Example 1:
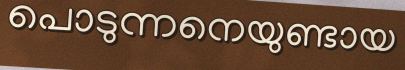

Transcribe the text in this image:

പൊടുന്നനെയുണ്ടായ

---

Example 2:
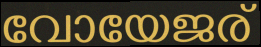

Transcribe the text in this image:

വോയേജര്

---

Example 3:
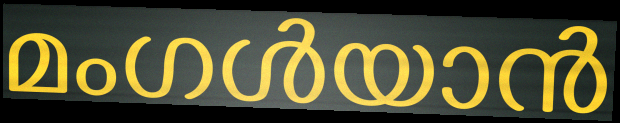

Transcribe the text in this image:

മംഗൾയാൻ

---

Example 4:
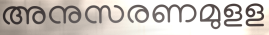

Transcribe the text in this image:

അനുസരണമുളള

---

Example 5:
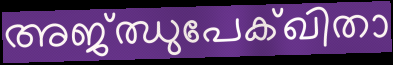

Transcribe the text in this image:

അജ്ഝുപേക്ഖിതാ